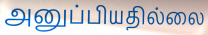
அனுப்பியதில்லை